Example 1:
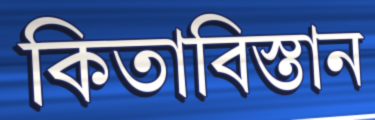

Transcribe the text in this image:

কিতাবিস্তান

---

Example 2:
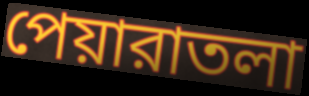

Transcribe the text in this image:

পেয়ারাতলা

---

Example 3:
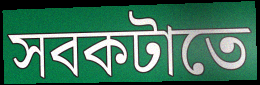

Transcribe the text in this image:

সবকটাতে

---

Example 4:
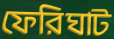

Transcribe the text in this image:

ফেরিঘাট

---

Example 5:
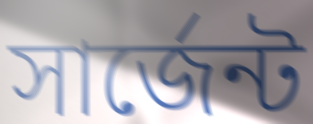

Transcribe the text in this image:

সার্জেন্ট